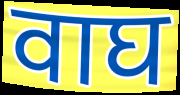
वाघ